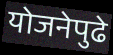
योजनेपुढे